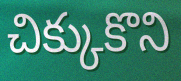
చిక్కుకొని